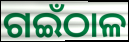
ଗଇଁଠାଳ